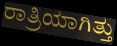
ರಾತ್ರಿಯಾಗಿತ್ತು